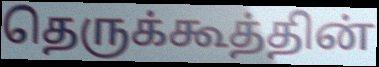
தெருக்கூத்தின்